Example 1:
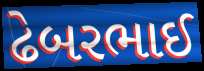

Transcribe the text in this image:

ઢેબરભાઈ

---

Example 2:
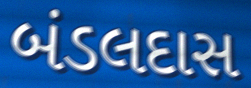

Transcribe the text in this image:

બંડલદાસ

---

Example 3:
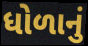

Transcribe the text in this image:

ધોળાનું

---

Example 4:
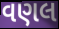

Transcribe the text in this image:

વણલ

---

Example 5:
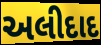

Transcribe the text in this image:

અલીદાદ